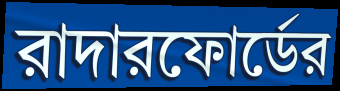
রাদারফোর্ডের